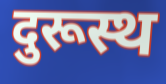
दुरूस्थ